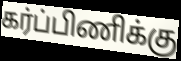
கர்ப்பிணிக்கு